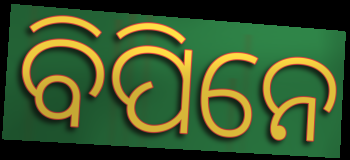
ବିପିନେ